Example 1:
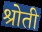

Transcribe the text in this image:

श्रोती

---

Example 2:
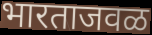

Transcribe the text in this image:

भारताजवळ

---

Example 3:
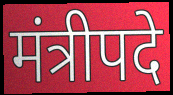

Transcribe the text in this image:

मंत्रीपदे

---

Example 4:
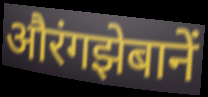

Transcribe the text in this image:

औरंगझेबानें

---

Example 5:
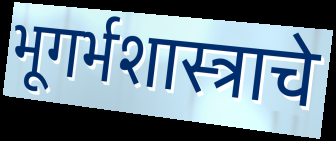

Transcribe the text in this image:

भूगर्भशास्त्राचे